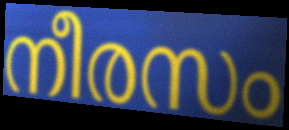
നീരസം